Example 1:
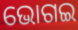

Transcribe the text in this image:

ଭୋଗଇ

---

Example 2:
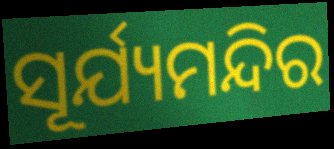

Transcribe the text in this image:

ସୂର୍ଯ୍ୟମନ୍ଦିର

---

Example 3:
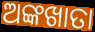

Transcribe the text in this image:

ଅଙ୍କଖାତା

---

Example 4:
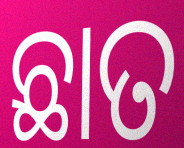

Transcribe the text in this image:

ଛାତ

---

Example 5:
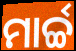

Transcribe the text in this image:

ମାର୍ଚ୍ଚ